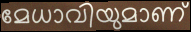
മേധാവിയുമാണ്